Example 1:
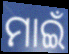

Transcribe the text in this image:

ମାଇଁ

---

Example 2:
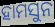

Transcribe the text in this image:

ହାମସୁନ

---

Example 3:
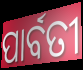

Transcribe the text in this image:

ପାର୍ବତୀ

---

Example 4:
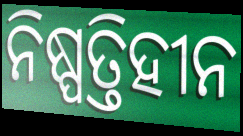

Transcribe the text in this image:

ନିଷ୍ପତ୍ତିହୀନ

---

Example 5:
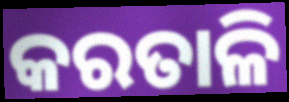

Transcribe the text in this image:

କରତାଳି